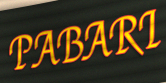
PABARI